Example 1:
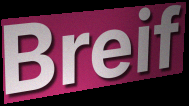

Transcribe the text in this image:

Breif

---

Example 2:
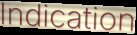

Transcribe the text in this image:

Indication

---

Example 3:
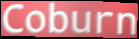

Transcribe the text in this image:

Coburn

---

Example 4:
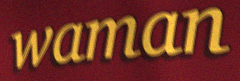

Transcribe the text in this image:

waman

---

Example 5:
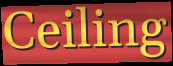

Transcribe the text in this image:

Ceiling